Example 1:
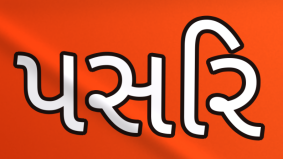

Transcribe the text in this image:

પસરિ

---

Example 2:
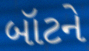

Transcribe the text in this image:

બૉટને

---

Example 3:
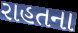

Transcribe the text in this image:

રાહતના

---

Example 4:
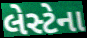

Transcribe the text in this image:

લેસ્ટેના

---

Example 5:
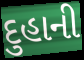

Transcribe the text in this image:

દુહાની